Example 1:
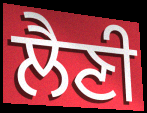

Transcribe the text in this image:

ਲੈਣੀ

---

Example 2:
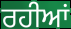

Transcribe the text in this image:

ਰਹੀਆਂ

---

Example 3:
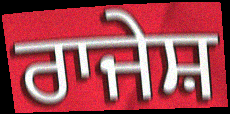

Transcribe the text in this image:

ਰਾਜੇਸ਼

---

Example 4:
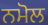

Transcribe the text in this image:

ਨਮੋਲ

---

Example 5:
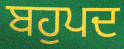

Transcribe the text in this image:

ਬਹੁਪਦ